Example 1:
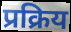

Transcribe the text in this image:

प्रक्रिय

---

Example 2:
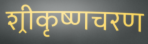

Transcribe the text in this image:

श्रीकृष्णचरण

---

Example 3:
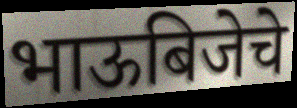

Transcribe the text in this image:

भाऊबिजेचे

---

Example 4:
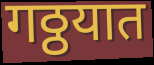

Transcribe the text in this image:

गठ्ठयात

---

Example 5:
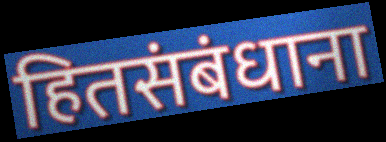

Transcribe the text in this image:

हितसंबंधाना